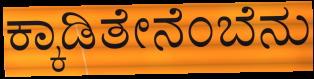
ಕ್ಕಾಡಿತೇನೆಂಬೆನು